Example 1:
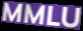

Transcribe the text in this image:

MMLU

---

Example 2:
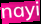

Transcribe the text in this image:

nayi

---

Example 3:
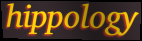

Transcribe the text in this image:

hippology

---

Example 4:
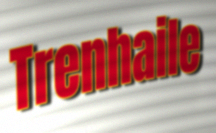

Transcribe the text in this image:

Trenhaile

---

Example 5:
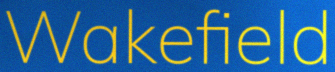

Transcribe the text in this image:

Wakefield